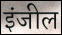
इंजील